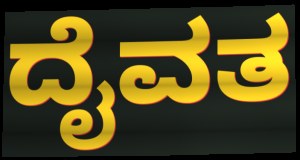
ದೈವತ